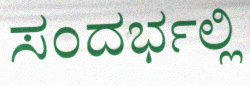
ಸಂದರ್ಭಲ್ಲಿ